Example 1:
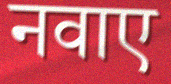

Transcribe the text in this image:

नवाए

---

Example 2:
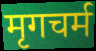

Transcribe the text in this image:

मृगचर्म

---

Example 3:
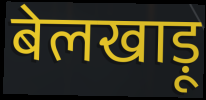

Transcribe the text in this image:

बेलखाड़ू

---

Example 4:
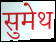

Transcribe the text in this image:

सुमेथ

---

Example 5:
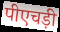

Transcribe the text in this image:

पीएचड़ी